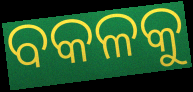
ବକଳକୁ